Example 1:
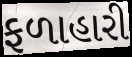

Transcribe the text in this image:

ફળાહારી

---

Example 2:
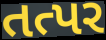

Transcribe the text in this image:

તત્પર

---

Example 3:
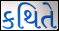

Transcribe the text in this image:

કથિતે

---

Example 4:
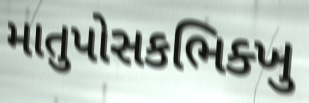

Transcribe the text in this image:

માતુપોસકભિક્ખુ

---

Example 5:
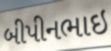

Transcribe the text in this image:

બીપીનભાઇ